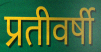
प्रतीवर्षी